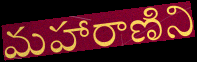
మహారాణిని